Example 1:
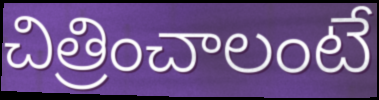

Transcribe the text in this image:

చిత్రించాలంటే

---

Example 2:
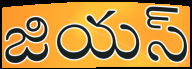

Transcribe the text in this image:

జియస్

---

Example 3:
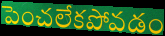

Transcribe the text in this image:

పెంచలేకపోవడం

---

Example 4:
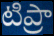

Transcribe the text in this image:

టిప్రా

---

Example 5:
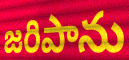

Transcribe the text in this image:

జరిపాను